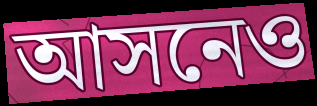
আসনেও